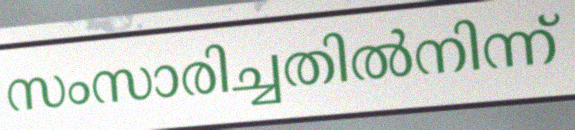
സംസാരിച്ചതിൽനിന്ന്